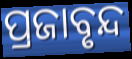
ପ୍ରଜାବୃନ୍ଦ